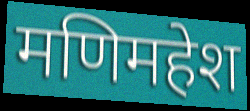
मणिमहेश